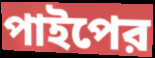
পাইপের